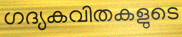
ഗദ്യകവിതകളുടെ